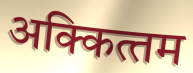
अक्‍कित्‍तम